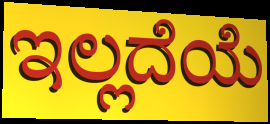
ಇಲ್ಲದೆಯೆ